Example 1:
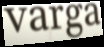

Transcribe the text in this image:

varga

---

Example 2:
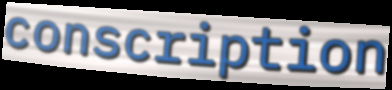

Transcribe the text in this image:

conscription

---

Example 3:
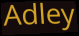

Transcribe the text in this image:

Adley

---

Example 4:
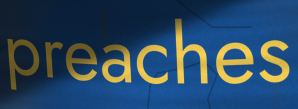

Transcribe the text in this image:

preaches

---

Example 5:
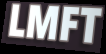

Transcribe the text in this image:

LMFT